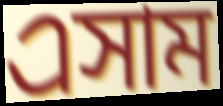
এসাম